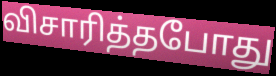
விசாரித்தபோது